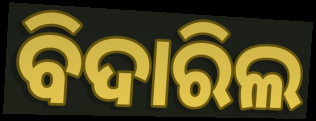
ବିଦାରିଲ